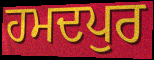
ਹਮਦਪੁਰ